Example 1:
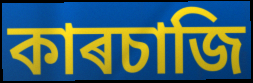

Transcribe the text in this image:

কাৰচাজি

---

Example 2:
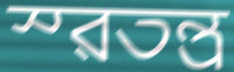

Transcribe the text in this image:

স্ৱতন্ত্ৰ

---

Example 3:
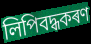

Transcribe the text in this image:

লিপিবদ্ধকৰণ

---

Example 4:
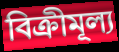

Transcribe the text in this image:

বিক্ৰীমূল্য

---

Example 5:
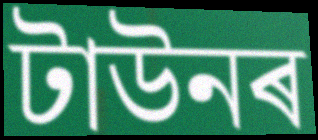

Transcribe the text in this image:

টাউনৰ